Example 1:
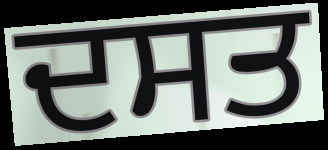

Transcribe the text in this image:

ਦਸਤ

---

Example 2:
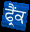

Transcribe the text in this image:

ਫ੍ਰੈਂਕ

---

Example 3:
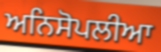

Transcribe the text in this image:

ਅਨਿਸੋਪਲੀਆ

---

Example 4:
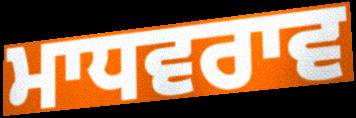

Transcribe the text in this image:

ਮਾਧਵਰਾਵ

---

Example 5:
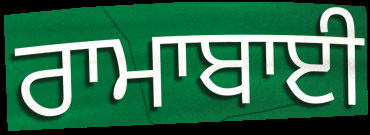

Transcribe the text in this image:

ਰਾਮਾਬਾਈ